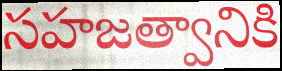
సహజత్వానికి